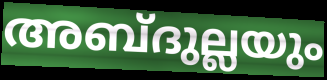
അബ്ദുല്ലയും